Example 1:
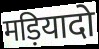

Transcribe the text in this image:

मड़ियादो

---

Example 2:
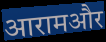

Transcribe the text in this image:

आरामऔर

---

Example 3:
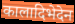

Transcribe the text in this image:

कालादिभेदेन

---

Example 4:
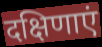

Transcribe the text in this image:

दक्षिणाएं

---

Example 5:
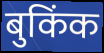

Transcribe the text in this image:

बुकिंक